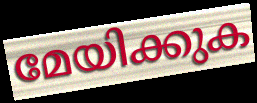
മേയിക്കുക